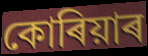
কোৰিয়াৰ